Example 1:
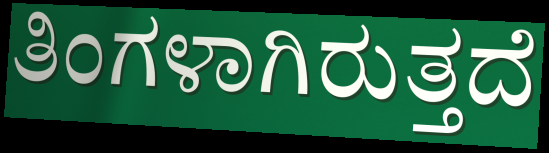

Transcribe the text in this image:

ತಿಂಗಳಾಗಿರುತ್ತದೆ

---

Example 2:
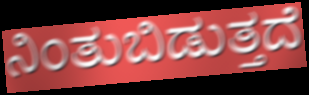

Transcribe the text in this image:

ನಿಂತುಬಿಡುತ್ತದೆ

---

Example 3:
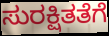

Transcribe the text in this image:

ಸುರಕ್ಷಿತತೆಗೆ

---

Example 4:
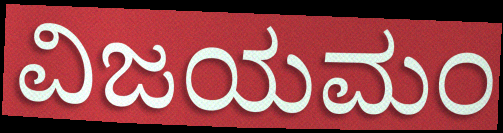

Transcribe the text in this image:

ವಿಜಯಮಂ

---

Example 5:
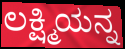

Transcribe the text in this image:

ಲಕ್ಷ್ಮಿಯನ್ನ